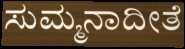
ಸುಮ್ಮನಾದೀತೆ